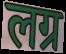
लग्र